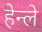
हेन्ले